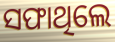
ସଫାଥିଲେ